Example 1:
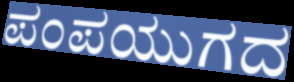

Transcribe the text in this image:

ಪಂಪಯುಗದ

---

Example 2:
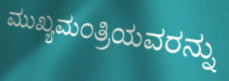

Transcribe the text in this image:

ಮುಖ್ಯಮಂತ್ರಿಯವರನ್ನು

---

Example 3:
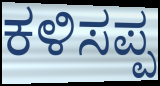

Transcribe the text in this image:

ಕಳಿಸಪ್ಪ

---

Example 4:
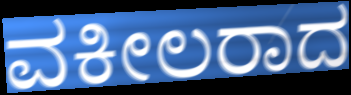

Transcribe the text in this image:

ವಕೀಲರಾದ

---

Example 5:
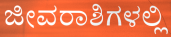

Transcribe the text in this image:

ಜೀವರಾಶಿಗಳಲ್ಲಿ